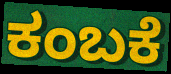
ಕಂಬಕೆ